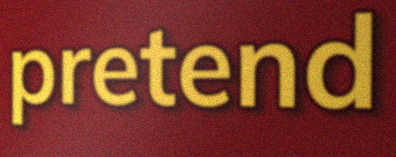
pretend